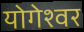
योगेश्वर